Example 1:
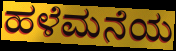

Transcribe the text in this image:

ಹಳೆಮನೆಯ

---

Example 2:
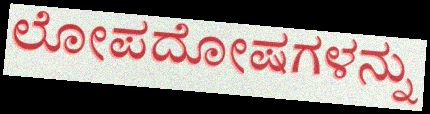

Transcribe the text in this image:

ಲೋಪದೋಷಗಳನ್ನು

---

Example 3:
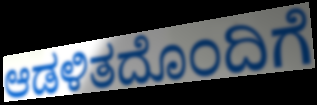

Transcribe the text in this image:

ಆಡಳಿತದೊಂದಿಗೆ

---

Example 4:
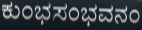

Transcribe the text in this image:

ಕುಂಭಸಂಭವನಂ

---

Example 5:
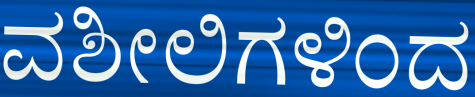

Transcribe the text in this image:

ವಶೀಲಿಗಳಿಂದ